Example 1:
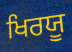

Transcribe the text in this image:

ਖਿਰਯੂ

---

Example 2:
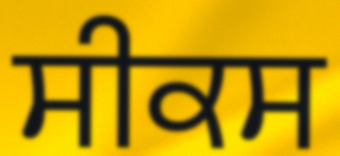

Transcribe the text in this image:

ਸੀਕਸ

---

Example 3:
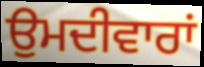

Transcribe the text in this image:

ਉਮਦੀਵਾਰਾਂ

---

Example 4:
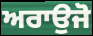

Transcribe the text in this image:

ਅਰਾਉਜੋ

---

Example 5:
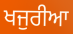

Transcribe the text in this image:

ਖਜੁਰੀਆ